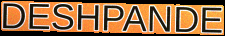
DESHPANDE